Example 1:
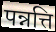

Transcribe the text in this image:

पन्नत्ति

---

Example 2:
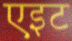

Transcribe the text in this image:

एइट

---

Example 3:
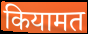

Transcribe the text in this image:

कियामत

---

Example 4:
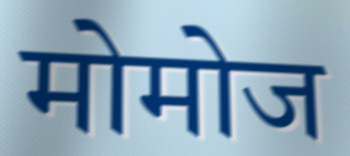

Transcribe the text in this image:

मोमोज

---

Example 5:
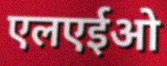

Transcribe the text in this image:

एलएईओ